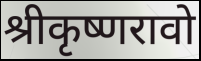
श्रीकृष्णरावो